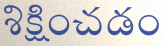
శిక్షించడం